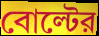
বোল্টের